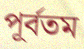
পূর্বতম